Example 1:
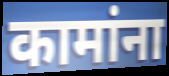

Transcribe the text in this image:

कामांना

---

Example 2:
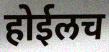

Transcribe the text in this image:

होईलच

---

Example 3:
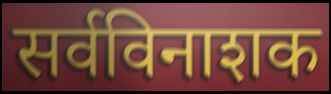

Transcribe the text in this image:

सर्वविनाशक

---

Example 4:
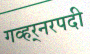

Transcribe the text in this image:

गव्हर्नरपदी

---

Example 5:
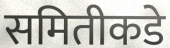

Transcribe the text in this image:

समितीकडे